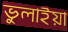
ভুলাইয়া